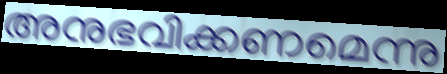
അനുഭവിക്കണമെന്നു